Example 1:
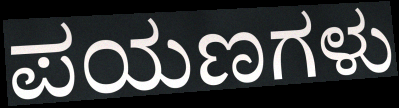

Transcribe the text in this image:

ಪಯಣಗಳು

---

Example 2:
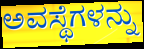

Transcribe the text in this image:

ಅವಸ್ಥೆಗಳನ್ನು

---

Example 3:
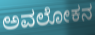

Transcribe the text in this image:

ಅವಲೋಕನ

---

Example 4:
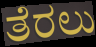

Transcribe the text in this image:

ತೆರಲು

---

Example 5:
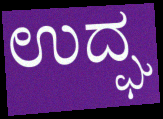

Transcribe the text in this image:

ಉದ್ಘ